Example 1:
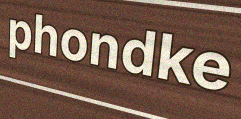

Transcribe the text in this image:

phondke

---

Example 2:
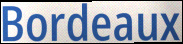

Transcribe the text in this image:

Bordeaux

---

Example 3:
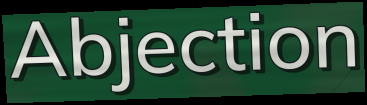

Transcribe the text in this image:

Abjection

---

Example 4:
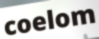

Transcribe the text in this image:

coelom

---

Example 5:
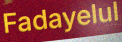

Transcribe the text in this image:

Fadayelul